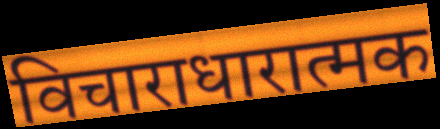
विचाराधारात्मक